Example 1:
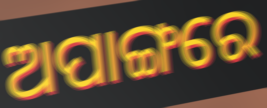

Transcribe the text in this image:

ଅପାଙ୍ଗରେ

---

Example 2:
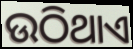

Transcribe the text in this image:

ଉଠିଥାଏ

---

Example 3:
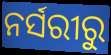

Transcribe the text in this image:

ନର୍ସରୀରୁ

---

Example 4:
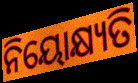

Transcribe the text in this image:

ନିୟୋକ୍ଷ୍ୟତି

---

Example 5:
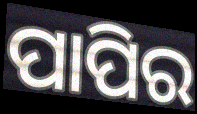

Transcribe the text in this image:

ପାପିର